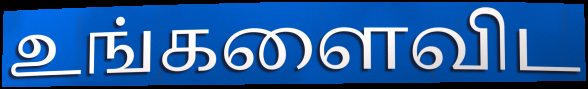
உங்களைவிட